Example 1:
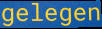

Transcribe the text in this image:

gelegen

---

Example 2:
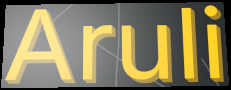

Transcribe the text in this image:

Aruli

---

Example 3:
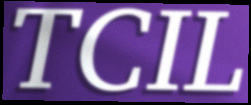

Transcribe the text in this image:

TCIL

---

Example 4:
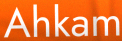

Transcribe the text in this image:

Ahkam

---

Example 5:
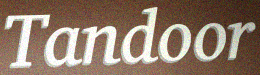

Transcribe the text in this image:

Tandoor